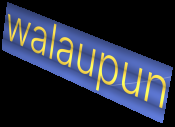
walaupun